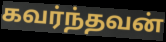
கவர்ந்தவன்